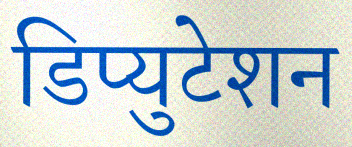
डिप्युटेशन